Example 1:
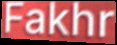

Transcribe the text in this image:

Fakhr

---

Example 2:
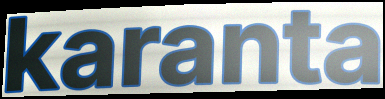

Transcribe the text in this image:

karanta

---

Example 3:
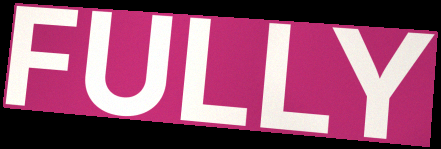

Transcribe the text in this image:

FULLY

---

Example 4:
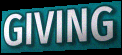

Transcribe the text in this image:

GIVING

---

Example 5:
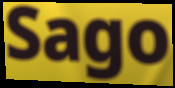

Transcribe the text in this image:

Sago